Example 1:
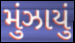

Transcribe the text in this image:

મુંઝાયું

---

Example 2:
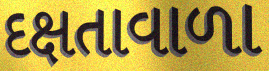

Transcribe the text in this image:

દક્ષતાવાળા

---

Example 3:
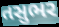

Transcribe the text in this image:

તસુભર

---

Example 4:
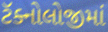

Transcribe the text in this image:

ટૅક્નોલોજીમાં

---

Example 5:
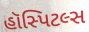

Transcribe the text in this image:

હૉસ્પિટલ્સ